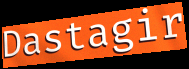
Dastagir